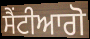
ਸੈਂਟੀਆਗੋ